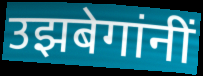
उझबेगांनीं